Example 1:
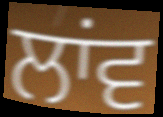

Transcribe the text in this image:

ਲਾਂਵ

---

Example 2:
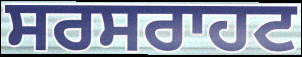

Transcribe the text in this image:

ਸਰਸਰਾਹਟ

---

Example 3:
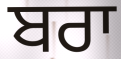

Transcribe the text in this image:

ਬਰਾ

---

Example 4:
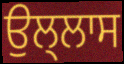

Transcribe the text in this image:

ਉਲ੍ਲਾਸ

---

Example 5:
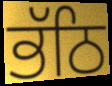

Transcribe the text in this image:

ਭੱਠਿ